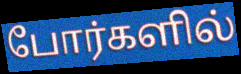
போர்களில்